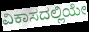
ವಿಕಾಸದಲ್ಲಿಯೇ